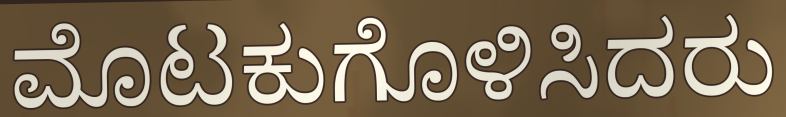
ಮೊಟಕುಗೊಳಿಸಿದರು